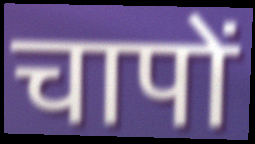
चापों